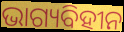
ଭାଗ୍ୟବିହୀନ